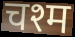
चश्म